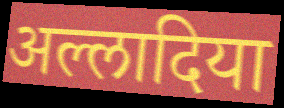
अल्लादिया